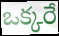
ఒక్కరే